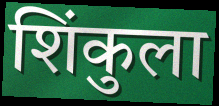
शिंकुला